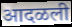
आदळली